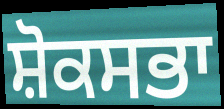
ਸ਼ੋਕਸਭਾ